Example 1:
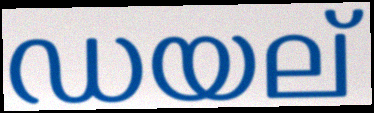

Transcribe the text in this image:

ഡയല്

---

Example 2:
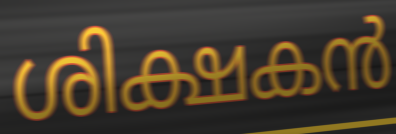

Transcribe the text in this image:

ശിക്ഷകൻ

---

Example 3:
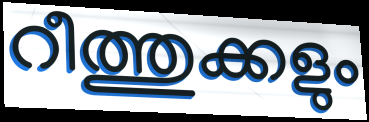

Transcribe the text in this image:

റീത്തുക്കളും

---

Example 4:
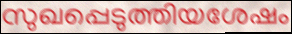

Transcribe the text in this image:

സുഖപ്പെടുത്തിയശേഷം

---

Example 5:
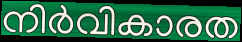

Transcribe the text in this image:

നിർവികാരത